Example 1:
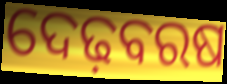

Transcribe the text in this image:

ଦେଢ଼ବରଷ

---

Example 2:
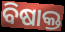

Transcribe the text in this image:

ବିଷାକ୍ତ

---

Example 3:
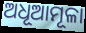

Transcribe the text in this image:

ଅଧୂଆମୂଳା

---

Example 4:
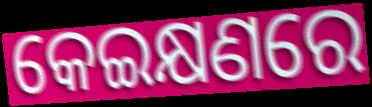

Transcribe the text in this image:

କେଇକ୍ଷଣରେ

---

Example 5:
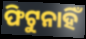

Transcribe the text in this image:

ଫିଟୁନାହିଁ